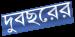
দুবছরের